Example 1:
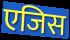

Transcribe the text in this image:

एजिस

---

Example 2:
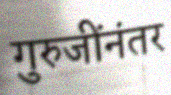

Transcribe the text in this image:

गुरुजींनंतर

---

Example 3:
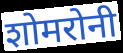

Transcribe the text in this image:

शोमरोनी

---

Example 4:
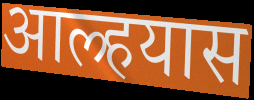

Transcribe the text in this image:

आल्हयास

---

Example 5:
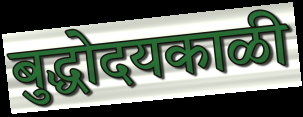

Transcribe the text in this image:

बुद्धोदयकाळी